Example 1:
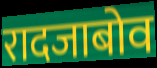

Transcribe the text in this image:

रादजाबोव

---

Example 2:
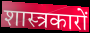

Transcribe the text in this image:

शास्त्रकारों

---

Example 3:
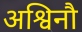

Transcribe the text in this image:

अश्विनौ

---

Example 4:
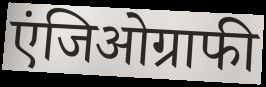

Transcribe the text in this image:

एंजिओग्राफी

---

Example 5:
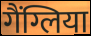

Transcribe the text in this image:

गैंग्लिया